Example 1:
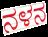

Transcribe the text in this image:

ನಳನ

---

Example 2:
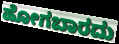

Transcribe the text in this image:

ಹೋಗಬಾರದು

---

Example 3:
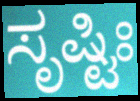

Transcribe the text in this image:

ಸೃಷ್ಟಿಃ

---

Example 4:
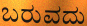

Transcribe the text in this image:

ಬರುವದು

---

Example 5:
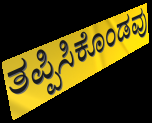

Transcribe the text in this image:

ತಪ್ಪಿಸಿಕೊಂಡವು